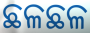
ଛଳଛଳ